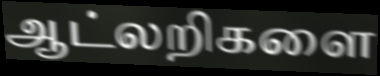
ஆட்லறிகளை